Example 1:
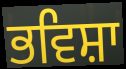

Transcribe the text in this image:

ਭਵਿਸ਼ਾ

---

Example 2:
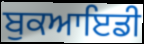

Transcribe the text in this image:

ਬੁਕਆਇਡੀ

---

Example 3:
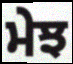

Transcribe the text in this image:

ਮੇਝ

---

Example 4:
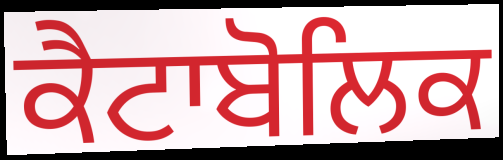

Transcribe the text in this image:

ਕੈਟਾਬੋਲਿਕ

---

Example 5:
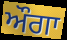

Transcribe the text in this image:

ਔਗਾ